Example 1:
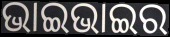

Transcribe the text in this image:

ଭାଇଭାଇର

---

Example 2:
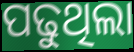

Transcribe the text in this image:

ପଢୁଥିଲା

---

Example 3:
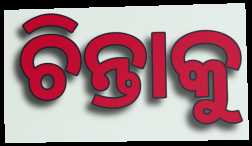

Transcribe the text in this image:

ଚିନ୍ତାକୁ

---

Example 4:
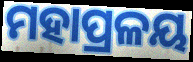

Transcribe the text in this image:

ମହାପ୍ରଳୟ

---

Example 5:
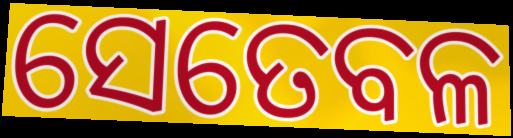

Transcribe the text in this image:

ସେତେବଳ